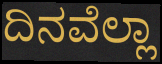
ದಿನವೆಲ್ಲಾ